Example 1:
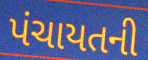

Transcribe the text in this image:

પંચાયતની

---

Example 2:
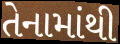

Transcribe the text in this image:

તેનામાંથી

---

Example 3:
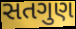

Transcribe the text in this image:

સતગુણ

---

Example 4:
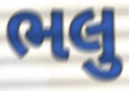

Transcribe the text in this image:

ભલુ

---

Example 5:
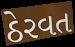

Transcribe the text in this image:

ઠેરવત